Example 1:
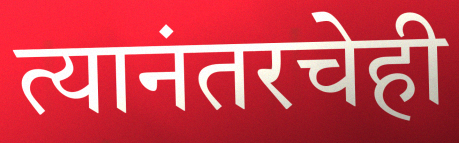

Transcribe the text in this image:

त्यानंतरचेही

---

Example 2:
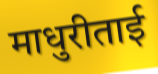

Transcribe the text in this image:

माधुरीताई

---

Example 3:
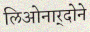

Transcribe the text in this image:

लिओनार्दोने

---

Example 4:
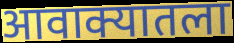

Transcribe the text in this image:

आवाक्यातला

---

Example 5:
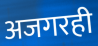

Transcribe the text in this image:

अजगरही